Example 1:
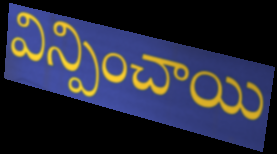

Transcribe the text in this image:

విన్పించాయి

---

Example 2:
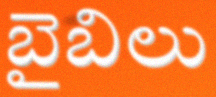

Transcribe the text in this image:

బైబిలు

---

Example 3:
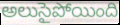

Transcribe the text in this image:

అలుసైపోయింది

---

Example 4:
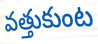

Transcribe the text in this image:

వత్తుకుంట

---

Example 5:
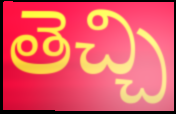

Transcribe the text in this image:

తెచ్చి